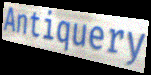
Antiquery